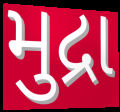
મુદ્રા